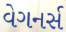
વેગનર્સ